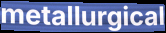
metallurgical